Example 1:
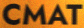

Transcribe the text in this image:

CMAT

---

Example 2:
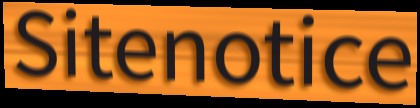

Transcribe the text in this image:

Sitenotice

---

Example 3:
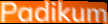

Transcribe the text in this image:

Padikum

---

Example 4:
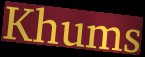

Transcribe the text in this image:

Khums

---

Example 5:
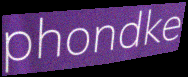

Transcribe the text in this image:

phondke